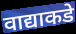
वाद्याकडे